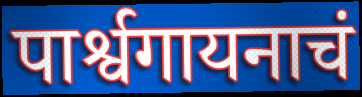
पार्श्वगायनाचं